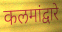
कलमांद्वारे